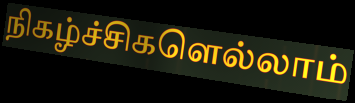
நிகழ்ச்சிகளெல்லாம்